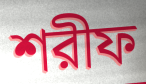
শরীফ